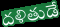
దళితుడే